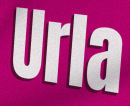
Urla